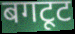
बगटूट